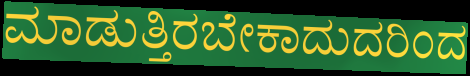
ಮಾಡುತ್ತಿರಬೇಕಾದುದರಿಂದ